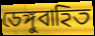
ডেঙ্গুবাহিত